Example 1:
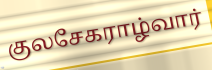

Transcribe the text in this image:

குலசேகராழ்வார்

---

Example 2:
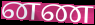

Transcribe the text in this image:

னண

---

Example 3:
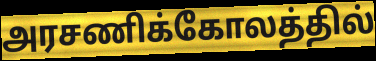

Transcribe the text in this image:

அரசணிக்கோலத்தில்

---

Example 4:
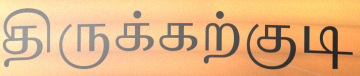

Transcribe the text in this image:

திருக்கற்குடி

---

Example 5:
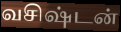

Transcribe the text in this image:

வசிஷ்டன்